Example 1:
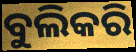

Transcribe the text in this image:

ବୁଲିକରି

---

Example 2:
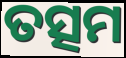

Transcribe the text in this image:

ତତ୍ସମ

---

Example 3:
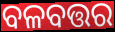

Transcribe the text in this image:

ବଳବତ୍ତର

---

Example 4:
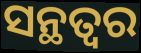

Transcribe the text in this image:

ସନ୍ଥତ୍ବର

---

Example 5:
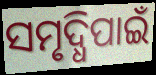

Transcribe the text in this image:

ସମୃଦ୍ଧିପାଇଁ